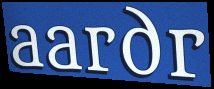
aardr